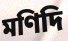
মণিদি